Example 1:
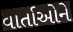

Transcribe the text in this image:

વાર્તાઓને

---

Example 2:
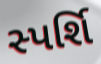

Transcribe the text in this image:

સ્પર્શિ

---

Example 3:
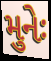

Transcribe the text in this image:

મુનેઃ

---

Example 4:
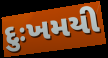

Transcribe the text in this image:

દુઃખમયી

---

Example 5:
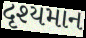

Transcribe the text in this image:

દૃશ્યમાન